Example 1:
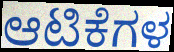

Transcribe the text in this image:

ಆಟಿಕೆಗಳ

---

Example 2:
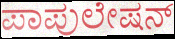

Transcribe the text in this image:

ಪಾಪುಲೇಷನ್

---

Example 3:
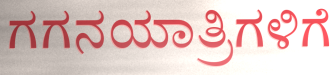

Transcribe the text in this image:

ಗಗನಯಾತ್ರಿಗಳಿಗೆ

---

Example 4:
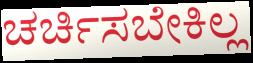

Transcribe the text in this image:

ಚರ್ಚಿಸಬೇಕಿಲ್ಲ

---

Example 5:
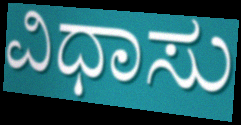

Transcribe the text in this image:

ವಿಧಾಸು